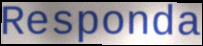
Responda